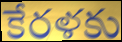
కేరళకు